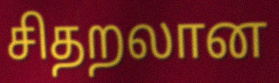
சிதறலான